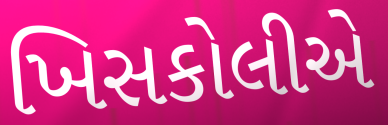
ખિસકોલીએ